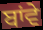
ਬਾਂਵੇ